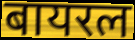
बायरल